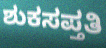
ಶುಕಸಪ್ತತಿ